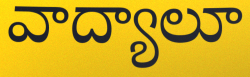
వాద్యాలూ